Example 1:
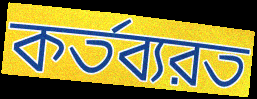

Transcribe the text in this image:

কর্তব্যরত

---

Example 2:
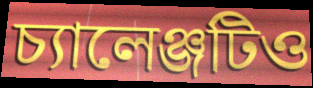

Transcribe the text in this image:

চ্যালেঞ্জটিও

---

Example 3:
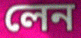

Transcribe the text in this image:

লেন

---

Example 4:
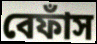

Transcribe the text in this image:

বেফাঁস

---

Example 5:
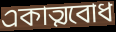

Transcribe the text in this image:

একাত্মবোধ